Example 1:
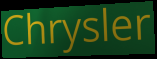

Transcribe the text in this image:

Chrysler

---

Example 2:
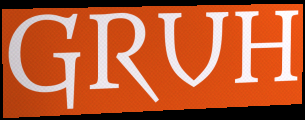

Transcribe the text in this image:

GRUH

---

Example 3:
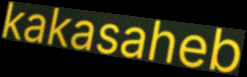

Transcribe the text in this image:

kakasaheb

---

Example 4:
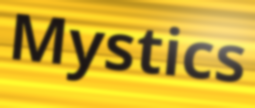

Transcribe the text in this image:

Mystics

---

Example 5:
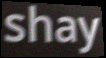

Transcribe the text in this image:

shay